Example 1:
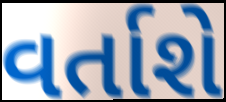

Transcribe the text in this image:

વર્તાશે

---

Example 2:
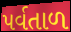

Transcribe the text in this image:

પર્વતાળ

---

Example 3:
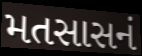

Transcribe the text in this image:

મતસાસનં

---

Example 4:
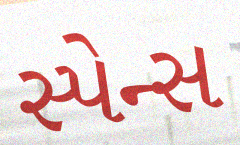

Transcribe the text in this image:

સ્પેન્સ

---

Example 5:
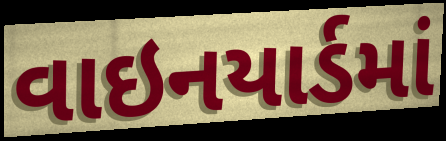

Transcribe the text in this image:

વાઇનયાર્ડમાં